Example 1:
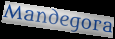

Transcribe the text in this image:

Mandegora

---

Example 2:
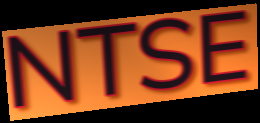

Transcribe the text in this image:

NTSE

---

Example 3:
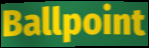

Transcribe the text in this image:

Ballpoint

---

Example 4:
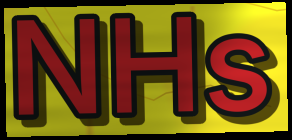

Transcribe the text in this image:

NHs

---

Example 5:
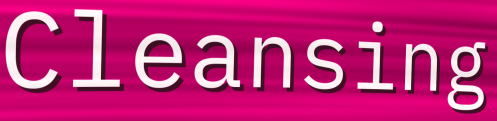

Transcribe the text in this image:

Cleansing